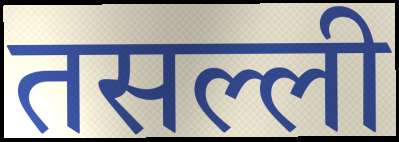
तसल्‍ली